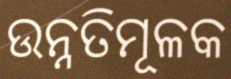
ଉନ୍ନତିମୂଳକ